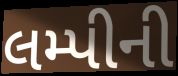
લમ્પીની